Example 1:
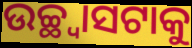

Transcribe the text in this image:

ଉଚ୍ଛ୍ୱାସଟାକୁ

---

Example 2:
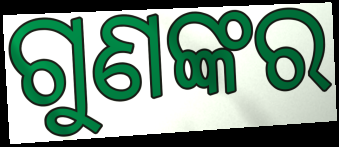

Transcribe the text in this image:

ଗୁଣଙ୍କର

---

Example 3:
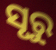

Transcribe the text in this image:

ସୃରୁ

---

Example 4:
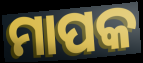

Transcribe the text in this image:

ମାପକ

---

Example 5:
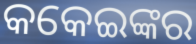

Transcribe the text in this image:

କକେଇଙ୍କର